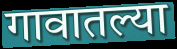
गावातल्या